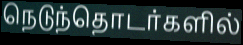
நெடுந்தொடர்களில்